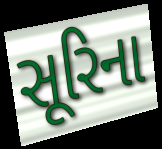
સૂરિના